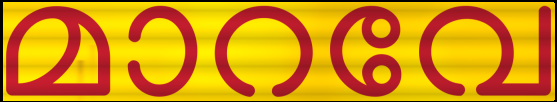
മാറവേ